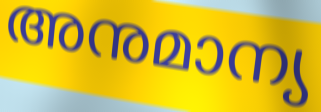
അനുമാന്യ